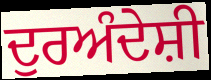
ਦੁਰਅੰਦੇਸ਼ੀ